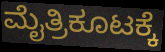
ಮೈತ್ರಿಕೂಟಕ್ಕೆ